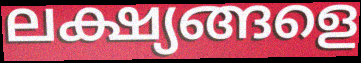
ലക്ഷ്യങ്ങളെ